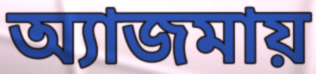
অ্যাজমায়